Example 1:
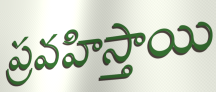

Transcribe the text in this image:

ప్రవహిస్తాయి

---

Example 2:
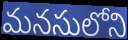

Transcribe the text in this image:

మనసులోని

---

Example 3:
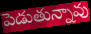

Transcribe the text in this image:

పెడుతున్నావు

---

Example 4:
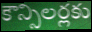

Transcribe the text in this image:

కౌన్సిలర్లకు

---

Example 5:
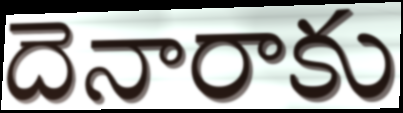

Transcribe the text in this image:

దెనారాకు